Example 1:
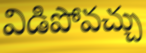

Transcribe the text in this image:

విడిపోవచ్చు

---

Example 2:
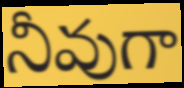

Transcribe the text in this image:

నీవుగా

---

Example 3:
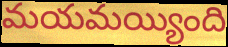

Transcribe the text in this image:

మయమయ్యింది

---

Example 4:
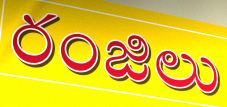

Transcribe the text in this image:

రంజిలు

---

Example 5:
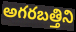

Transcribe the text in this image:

అగరబత్తిని